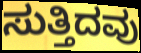
ಸುತ್ತಿದವು